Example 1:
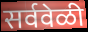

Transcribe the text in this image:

सर्ववेळी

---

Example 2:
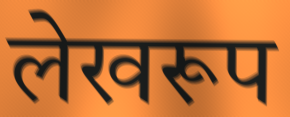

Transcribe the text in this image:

लेखरूप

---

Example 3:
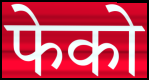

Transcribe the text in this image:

फेको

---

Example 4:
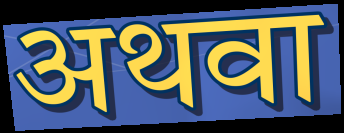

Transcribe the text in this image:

अथवा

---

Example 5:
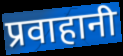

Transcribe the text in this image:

प्रवाहानी